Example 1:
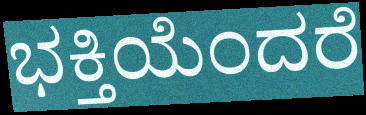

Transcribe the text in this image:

ಭಕ್ತಿಯೆಂದರೆ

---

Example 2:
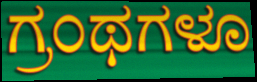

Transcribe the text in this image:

ಗ್ರಂಥಗಳೂ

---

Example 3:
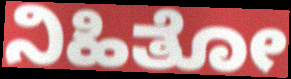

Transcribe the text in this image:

ನಿಹಿತೋ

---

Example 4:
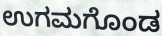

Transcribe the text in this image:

ಉಗಮಗೊಂಡ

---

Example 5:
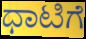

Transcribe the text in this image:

ಧಾಟಿಗೆ